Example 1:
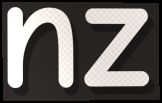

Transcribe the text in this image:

nz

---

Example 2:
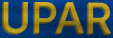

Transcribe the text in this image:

UPAR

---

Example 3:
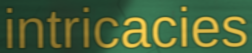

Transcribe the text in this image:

intricacies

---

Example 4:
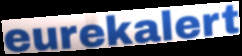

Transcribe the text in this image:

eurekalert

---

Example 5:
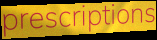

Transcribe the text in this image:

prescriptions